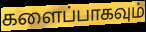
களைப்பாகவும்